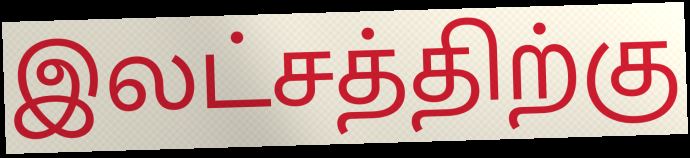
இலட்சத்திற்கு